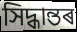
সিদ্ধান্তৰ